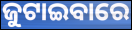
ଜୁଟାଇବାରେ